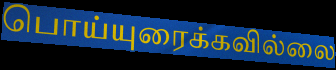
பொய்யுரைக்கவில்லை